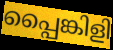
പ്പൈങ്കിളി